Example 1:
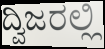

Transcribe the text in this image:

ದ್ವಿಜರಲ್ಲಿ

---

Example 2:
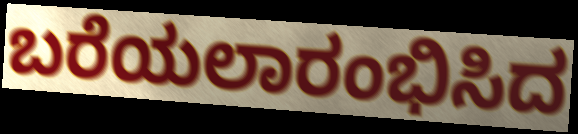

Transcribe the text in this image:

ಬರೆಯಲಾರಂಭಿಸಿದ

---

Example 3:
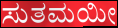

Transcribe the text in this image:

ಸುತಮಯೀ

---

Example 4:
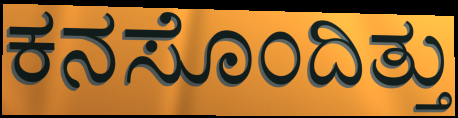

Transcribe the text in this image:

ಕನಸೊಂದಿತ್ತು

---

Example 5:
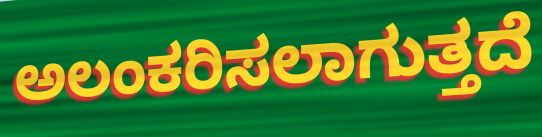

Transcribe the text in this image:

ಅಲಂಕರಿಸಲಾಗುತ್ತದೆ